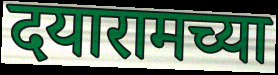
दयारामच्या